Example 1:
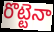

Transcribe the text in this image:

రొట్టెనా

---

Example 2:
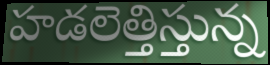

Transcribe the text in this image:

హడలెత్తిస్తున్న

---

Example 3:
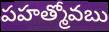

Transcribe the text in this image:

పహత్మోవబు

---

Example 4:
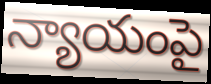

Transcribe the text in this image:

న్యాయంపై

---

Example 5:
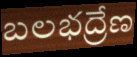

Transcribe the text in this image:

బలభద్రేణ